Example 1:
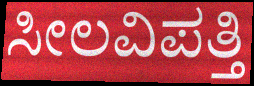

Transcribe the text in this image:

ಸೀಲವಿಪತ್ತಿ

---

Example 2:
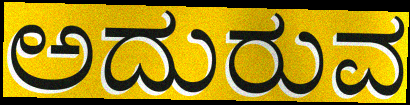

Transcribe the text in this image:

ಅದುರುವ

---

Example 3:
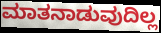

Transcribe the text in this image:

ಮಾತನಾಡುವುದಿಲ್ಲ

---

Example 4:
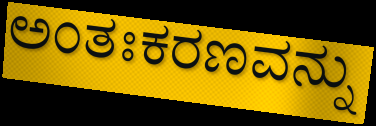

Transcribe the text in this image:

ಅಂತಃಕರಣವನ್ನು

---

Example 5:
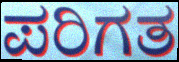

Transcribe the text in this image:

ಪರಿಗತ